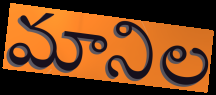
మానిల